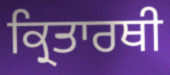
ਕ੍ਰਿਤਾਰਥੀ